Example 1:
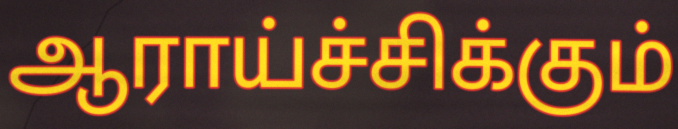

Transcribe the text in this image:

ஆராய்ச்சிக்கும்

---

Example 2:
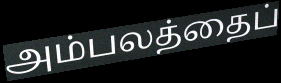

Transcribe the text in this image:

அம்பலத்தைப்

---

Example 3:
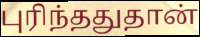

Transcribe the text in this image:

புரிந்ததுதான்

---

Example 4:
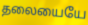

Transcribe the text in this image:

தலையையே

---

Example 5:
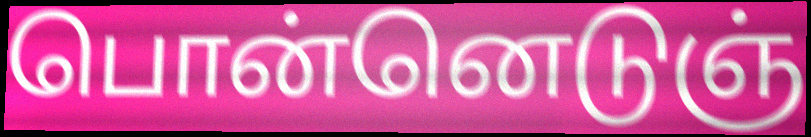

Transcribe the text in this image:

பொன்னெடுஞ்